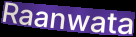
Raanwata